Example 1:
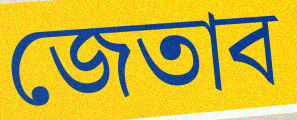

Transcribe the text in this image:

জেতাব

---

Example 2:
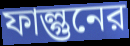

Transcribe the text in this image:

ফাল্গুনের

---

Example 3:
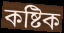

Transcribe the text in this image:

কষ্টিক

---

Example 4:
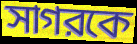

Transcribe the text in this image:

সাগরকে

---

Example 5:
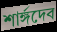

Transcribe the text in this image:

শার্ঙ্গদেব